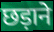
छड़ाने